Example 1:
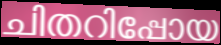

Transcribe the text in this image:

ചിതറിപ്പോയ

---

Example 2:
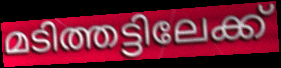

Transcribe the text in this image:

മടിത്തട്ടിലേക്ക്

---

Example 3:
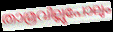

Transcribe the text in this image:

താമ്രവില്ലുപോലും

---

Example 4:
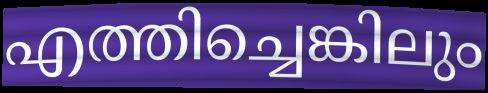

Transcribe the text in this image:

എത്തിച്ചെങ്കിലും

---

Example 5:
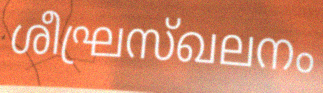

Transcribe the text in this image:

ശീഘ്രസ്ഖലനം